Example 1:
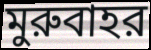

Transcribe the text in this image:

মুরুবাহর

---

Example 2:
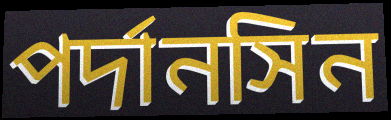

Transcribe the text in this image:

পর্দানসিন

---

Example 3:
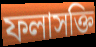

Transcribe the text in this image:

ফলাসক্তি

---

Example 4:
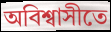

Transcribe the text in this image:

অবিশ্বাসীতে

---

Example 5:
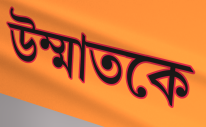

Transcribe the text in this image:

উম্মাতকে